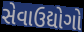
સેવાઉદ્યોગો